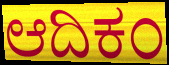
ಆದಿಕಂ